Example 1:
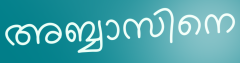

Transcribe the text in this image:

അബ്ബാസിനെ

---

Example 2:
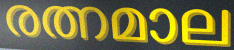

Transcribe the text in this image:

രത്നമാല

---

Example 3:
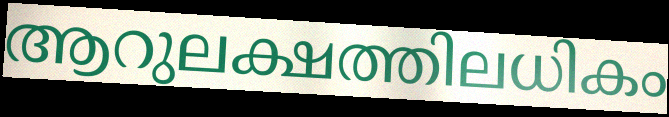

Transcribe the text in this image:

ആറുലക്ഷത്തിലധികം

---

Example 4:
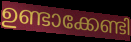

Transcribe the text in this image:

ഉണ്ടാക്കേണ്ടി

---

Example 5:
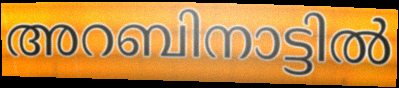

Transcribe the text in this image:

അറബിനാട്ടിൽ